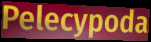
Pelecypoda